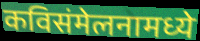
कविसंमेलनामध्ये